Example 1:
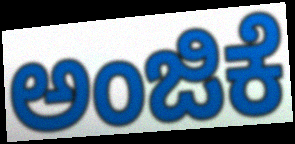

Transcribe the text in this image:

ಅಂಜಿಕೆ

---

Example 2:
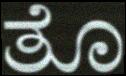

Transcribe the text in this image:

ತೊ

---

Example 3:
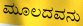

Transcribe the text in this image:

ಮೂಲದವನು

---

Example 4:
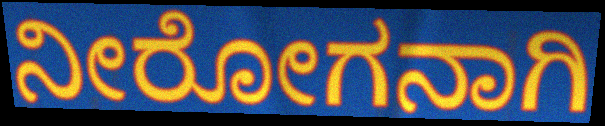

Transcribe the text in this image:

ನೀರೋಗನಾಗಿ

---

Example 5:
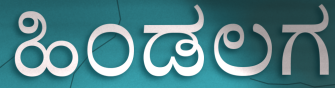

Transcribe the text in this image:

ಹಿಂಡಲಗ